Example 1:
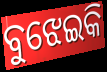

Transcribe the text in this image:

ବୁଝେଇକି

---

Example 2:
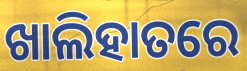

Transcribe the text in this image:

ଖାଲିହାତରେ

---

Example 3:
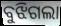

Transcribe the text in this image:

ବୁଝିଗଲା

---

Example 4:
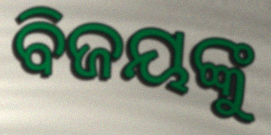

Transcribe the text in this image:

ବିଜୟଙ୍କୁ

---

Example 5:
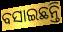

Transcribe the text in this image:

ବସାଇଛନ୍ତି